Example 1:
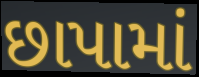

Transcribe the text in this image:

છાપામાં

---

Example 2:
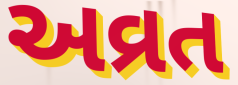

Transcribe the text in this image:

અવ્રત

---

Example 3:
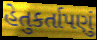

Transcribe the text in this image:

હેતુકર્તાપણું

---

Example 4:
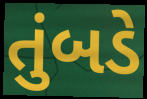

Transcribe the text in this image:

તુંબડે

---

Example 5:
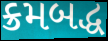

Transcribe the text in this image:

ક્રમબદ્ધ